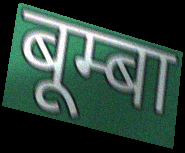
बूम्बा